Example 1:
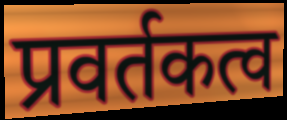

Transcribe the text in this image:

प्रवर्तकत्व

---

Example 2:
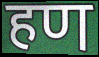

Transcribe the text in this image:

हण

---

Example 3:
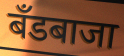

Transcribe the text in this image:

बँडबाजा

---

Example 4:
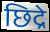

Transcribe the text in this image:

छिद्रे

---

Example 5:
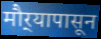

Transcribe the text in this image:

मौर्यापासून